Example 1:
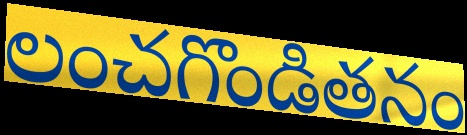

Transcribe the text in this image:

లంచగొండితనం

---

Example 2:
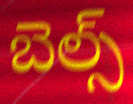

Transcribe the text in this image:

బెల్స్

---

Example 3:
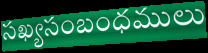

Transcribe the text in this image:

సఖ్యసంబంధములు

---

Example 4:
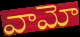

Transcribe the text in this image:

వామో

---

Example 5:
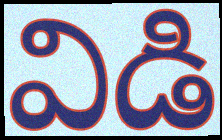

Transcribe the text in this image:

విడి